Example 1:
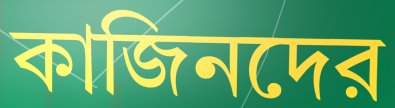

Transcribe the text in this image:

কাজিনদের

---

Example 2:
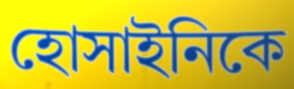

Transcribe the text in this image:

হোসাইনিকে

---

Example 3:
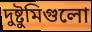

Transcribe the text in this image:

দুষ্টুমিগুলো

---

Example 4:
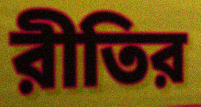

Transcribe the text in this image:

রীতির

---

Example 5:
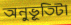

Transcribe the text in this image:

অনুভূতিটা